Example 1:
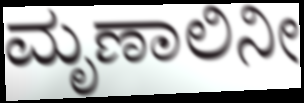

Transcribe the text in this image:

ಮೃಣಾಲಿನೀ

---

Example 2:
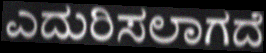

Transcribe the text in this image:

ಎದುರಿಸಲಾಗದೆ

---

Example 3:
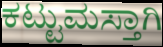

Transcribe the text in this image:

ಕಟ್ಟುಮಸ್ತಾಗಿ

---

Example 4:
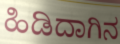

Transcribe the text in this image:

ಹಿಡಿದಾಗಿನ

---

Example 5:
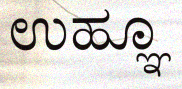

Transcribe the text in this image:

ಉಹ್ಞೂ